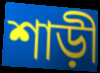
শাড়ী